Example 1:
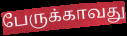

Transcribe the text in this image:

பேருக்காவது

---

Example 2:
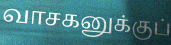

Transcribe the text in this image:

வாசகனுக்குப்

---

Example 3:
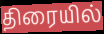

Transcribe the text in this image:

திரையில்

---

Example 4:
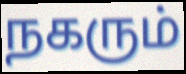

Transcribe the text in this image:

நகரும்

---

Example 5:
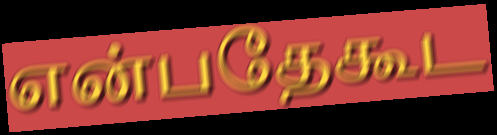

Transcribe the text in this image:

என்பதேகூட